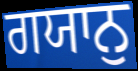
ਗਯਾਨੁ